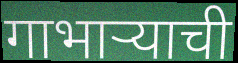
गाभार्‍याची